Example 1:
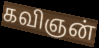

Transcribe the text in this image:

கவிஞன்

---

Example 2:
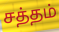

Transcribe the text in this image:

சத்தம்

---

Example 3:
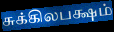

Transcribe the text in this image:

சுக்கிலபக்ஷம்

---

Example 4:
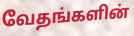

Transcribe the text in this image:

வேதங்களின்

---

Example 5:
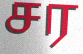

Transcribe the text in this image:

சர